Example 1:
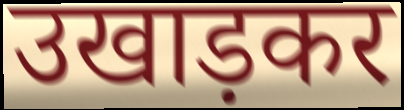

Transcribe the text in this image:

उखाड़कर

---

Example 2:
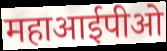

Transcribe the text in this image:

महाआईपीओ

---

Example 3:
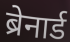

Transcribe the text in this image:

ब्रेनार्ड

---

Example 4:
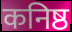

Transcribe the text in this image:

कनिष्ठ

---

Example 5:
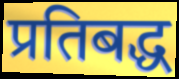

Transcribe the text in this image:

प्रतिबद्ध